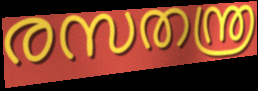
രസതന്ത്ര